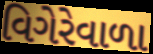
વિગેરેવાળા